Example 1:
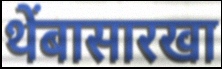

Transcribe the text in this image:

थेंबासारखा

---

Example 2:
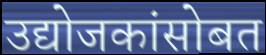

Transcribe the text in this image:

उद्योजकांसोबत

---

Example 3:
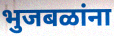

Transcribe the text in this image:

भुजबळांना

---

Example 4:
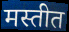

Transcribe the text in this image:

मस्तीत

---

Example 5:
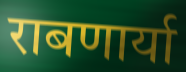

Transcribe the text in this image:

राबणार्या